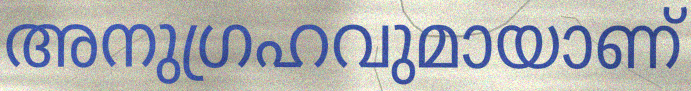
അനുഗ്രഹവുമായാണ്